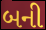
બની